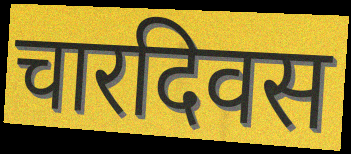
चारदिवस